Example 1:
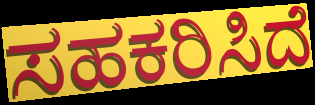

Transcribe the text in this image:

ಸಹಕರಿಸಿದೆ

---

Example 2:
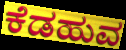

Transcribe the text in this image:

ಕೆಡಹುವ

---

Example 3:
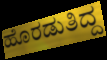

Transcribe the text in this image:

ಹೊರಡುತಿದ್ದ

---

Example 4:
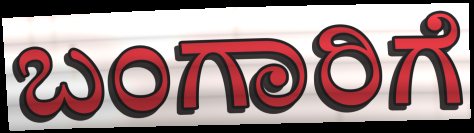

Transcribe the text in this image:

ಬಂಗಾರಿಗೆ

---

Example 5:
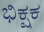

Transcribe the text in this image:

ಭಿಕ್ಷಕ